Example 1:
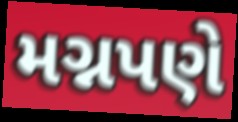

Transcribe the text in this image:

મગ્નપણે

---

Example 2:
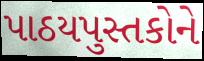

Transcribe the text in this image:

પાઠયપુસ્તકોને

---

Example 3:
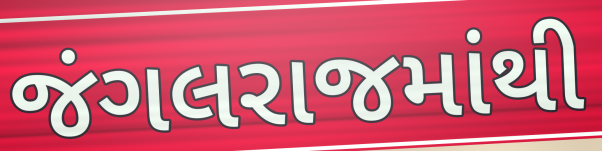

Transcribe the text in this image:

જંગલરાજમાંથી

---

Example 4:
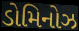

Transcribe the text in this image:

ડોમિનોઝ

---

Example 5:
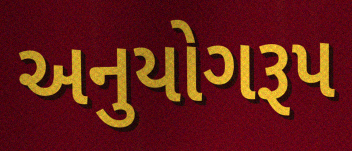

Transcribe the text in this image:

અનુયોગરૂપ